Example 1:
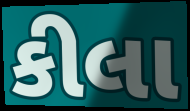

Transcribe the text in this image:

કીલા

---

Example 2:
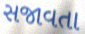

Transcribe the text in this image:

સજાવતા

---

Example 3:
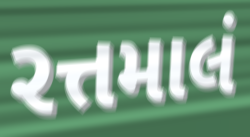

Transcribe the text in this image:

રત્તમાલં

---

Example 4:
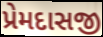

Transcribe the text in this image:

પ્રેમદાસજી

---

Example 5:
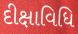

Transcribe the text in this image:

દીક્ષાવિધિ